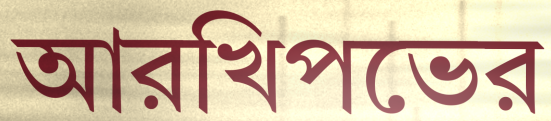
আরখিপভের